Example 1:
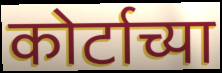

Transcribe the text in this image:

कोर्टाच्या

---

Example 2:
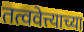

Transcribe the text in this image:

तत्ववेत्त्याच्या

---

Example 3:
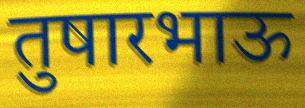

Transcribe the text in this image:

तुषारभाऊ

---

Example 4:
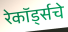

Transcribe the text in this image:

रेकॉर्ड्सचे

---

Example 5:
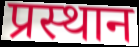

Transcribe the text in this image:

प्रस्थान